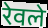
रेवले